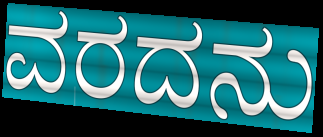
ವರದನು